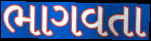
ભાગવતા